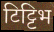
टिट्टिभ